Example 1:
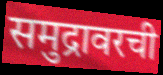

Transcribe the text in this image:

समुद्रावरची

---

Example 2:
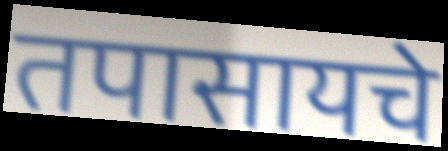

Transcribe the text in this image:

तपासायचे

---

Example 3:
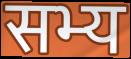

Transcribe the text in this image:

सभ्य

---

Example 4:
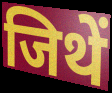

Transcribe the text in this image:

जिथें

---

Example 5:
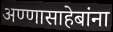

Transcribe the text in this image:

अण्णासाहेबांना